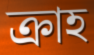
ক্রাহ